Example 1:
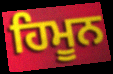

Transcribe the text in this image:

ਹਿਮੂਨ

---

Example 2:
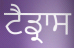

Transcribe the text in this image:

ਟੈਡ੍ਰਾਸ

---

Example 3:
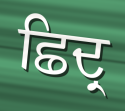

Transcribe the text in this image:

ਛਿਦ੍ਰ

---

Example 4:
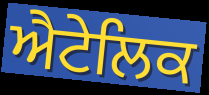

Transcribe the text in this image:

ਐਟੇਲਿਕ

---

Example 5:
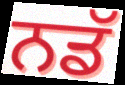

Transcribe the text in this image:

ਨਡੱ